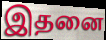
இதனை